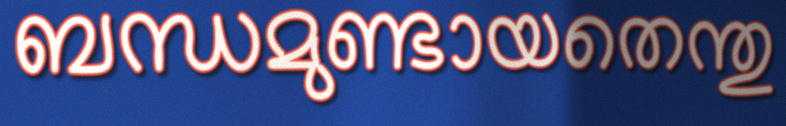
ബന്ധമുണ്ടായതെന്തു